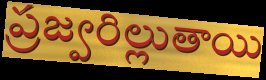
ప్రజ్వరిల్లుతాయి